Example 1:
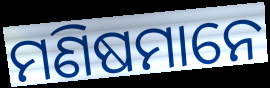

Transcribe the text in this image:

ମଣିଷମାନେ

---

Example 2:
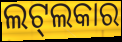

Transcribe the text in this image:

ଲଟ୍‌ଲକାର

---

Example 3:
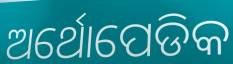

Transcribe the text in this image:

ଅର୍ଥୋପେଡିକ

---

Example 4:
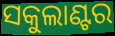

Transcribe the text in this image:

ସକୁଲାଣ୍ଟର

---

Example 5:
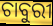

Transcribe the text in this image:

ଚାବୁରୀ